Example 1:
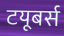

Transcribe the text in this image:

टयूबर्स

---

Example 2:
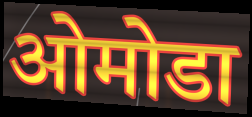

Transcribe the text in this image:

ओमोडा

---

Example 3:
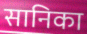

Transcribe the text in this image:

सानिका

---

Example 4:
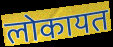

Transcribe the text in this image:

लोकायत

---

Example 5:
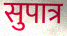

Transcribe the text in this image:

सुपात्र